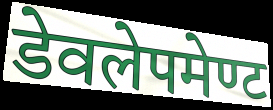
डेवलेपमेण्ट